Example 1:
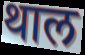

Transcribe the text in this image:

थाल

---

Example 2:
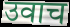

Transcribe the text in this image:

उवाच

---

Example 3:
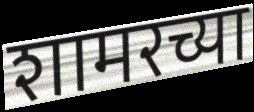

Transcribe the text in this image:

शामरच्या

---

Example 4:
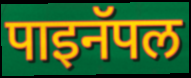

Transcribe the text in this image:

पाइनॅपल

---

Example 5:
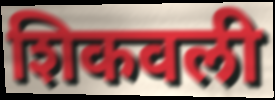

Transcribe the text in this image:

शिकवली